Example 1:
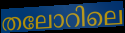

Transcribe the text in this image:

തലോറിലെ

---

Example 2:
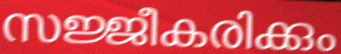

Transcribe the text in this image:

സജ്ജീകരിക്കും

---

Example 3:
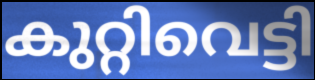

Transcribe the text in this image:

കുറ്റിവെട്ടി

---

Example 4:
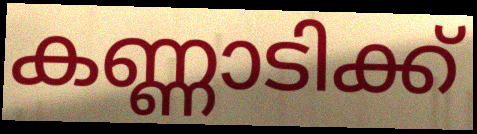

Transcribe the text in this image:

കണ്ണാടിക്ക്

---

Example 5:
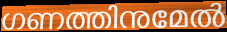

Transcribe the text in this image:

ഗണത്തിനുമേൽ